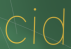
cid